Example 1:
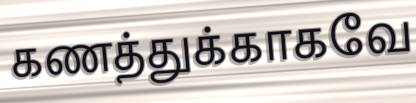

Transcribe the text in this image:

கணத்துக்காகவே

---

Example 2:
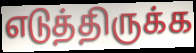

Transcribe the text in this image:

எடுத்திருக்க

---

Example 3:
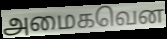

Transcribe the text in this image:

அமைகவென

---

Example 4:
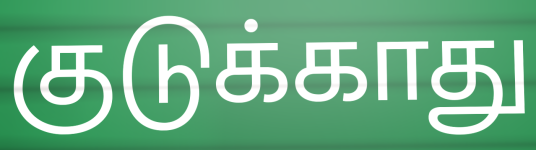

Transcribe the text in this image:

குடுக்காது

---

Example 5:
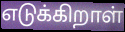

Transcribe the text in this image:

எடுக்கிறாள்